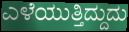
ಎಳೆಯುತ್ತಿದ್ದುದು